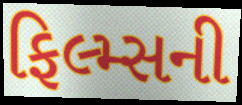
ફિલ્મ્સની